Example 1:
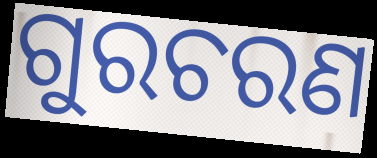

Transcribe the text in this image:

ଗୁରଚରଣ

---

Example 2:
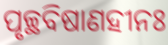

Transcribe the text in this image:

ପୃଚ୍ଛବିଷାଣହୀନଃ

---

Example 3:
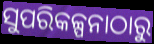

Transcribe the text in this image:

ସୁପରିକଳ୍ପନାଠାରୁ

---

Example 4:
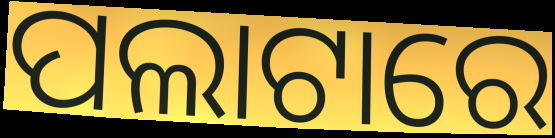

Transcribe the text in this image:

ପଲାଟାରେ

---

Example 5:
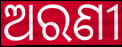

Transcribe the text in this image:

ଅରଣୀ